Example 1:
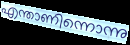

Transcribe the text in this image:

എന്താണിന്നൊന്നു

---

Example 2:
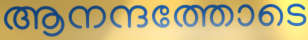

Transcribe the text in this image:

ആനന്ദത്തോടെ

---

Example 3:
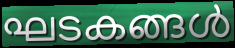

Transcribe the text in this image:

ഘടകങ്ങൾ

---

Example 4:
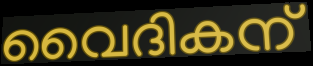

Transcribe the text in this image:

വൈദികന്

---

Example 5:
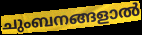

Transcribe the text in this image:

ചുംബനങ്ങളാൽ